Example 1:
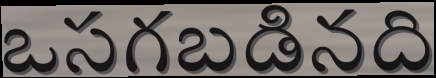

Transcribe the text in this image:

ఒసగబడినది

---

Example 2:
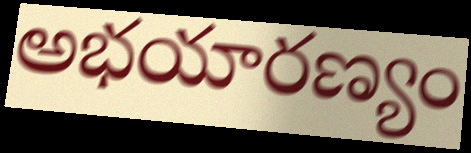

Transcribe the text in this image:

అభయారణ్యం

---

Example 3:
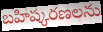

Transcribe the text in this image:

బహిష్కరణలను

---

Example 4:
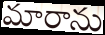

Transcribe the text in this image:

మారాను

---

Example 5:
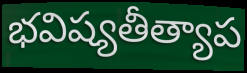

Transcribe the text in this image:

భవిష్యతీత్యాప